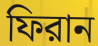
ফিরান